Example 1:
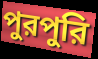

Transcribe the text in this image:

পুরপুরি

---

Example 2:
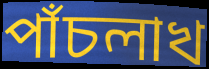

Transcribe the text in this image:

পাঁচলাখ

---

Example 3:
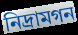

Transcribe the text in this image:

নিদ্রামগন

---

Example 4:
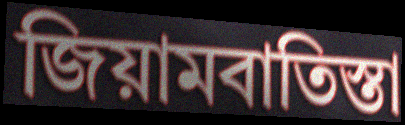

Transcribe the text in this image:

জিয়ামবাতিস্তা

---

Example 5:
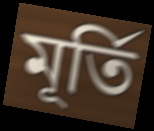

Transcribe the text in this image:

মূর্তি